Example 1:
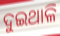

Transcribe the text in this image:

ଦୁଇଥାଳି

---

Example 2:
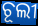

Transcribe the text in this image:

ଚୂଲୀ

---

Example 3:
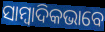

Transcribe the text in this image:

ସାମ୍ୱାଦିକଭାବେ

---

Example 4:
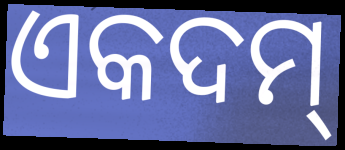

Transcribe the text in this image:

ଏକଦମ୍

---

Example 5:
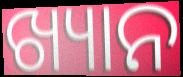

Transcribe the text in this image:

ଖ୍ୟାନ